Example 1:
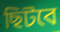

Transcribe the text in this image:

ছিটবে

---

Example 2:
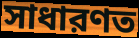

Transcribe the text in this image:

সাধারণত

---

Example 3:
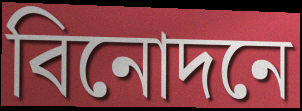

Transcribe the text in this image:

বিনোদনে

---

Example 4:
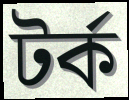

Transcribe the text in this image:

টর্ক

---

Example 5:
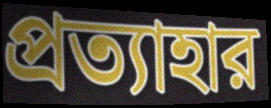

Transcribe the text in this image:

প্রত্যাহার